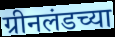
ग्रीनलंडच्या